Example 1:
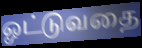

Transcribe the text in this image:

ஓட்டுவதை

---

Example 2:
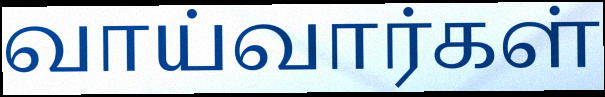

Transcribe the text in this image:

வாய்வார்கள்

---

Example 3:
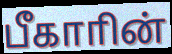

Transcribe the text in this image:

பீகாரின்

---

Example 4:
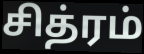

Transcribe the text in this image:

சித்ரம்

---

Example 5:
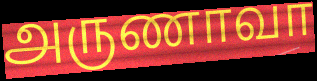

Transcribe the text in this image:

அருணாவா